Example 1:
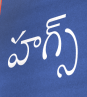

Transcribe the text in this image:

హగ్స్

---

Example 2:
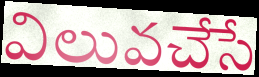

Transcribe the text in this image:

విలువచేసే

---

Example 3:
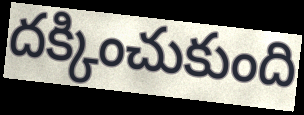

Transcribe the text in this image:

దక్కించుకుంది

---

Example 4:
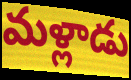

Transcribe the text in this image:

మళ్లాడు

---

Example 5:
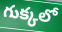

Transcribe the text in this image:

గుక్కలో